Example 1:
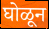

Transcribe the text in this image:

घोळून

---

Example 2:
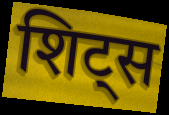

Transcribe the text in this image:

शिट्स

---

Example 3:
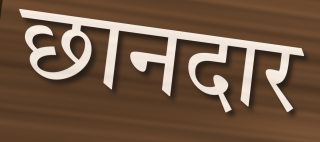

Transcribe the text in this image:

छानदार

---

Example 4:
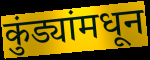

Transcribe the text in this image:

कुंड्यांमधून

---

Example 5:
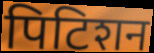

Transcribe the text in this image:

पिटिशन